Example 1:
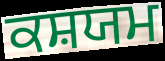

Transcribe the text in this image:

ਕਸ਼ਯਮ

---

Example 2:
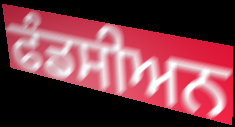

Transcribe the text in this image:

ਫੰਡਸੀਅਨ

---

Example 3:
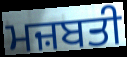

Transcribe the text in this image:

ਮਜ਼ਬਤੀ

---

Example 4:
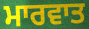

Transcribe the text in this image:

ਮਾਰਵਾਤ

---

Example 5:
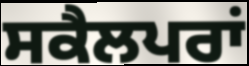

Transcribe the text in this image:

ਸਕੈਲਪਰਾਂ